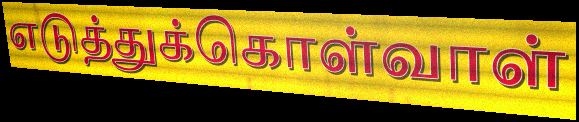
எடுத்துக்கொள்வாள்